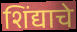
शिंद्याचे